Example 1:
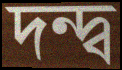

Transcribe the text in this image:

দন্দ্ব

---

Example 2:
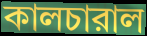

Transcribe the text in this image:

কালচারাল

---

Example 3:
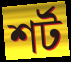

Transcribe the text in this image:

শর্ট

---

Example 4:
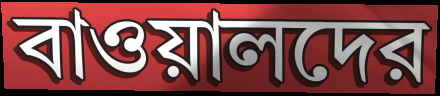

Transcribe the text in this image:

বাওয়ালদের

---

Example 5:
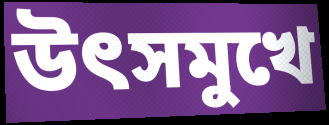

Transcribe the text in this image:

উৎসমুখে